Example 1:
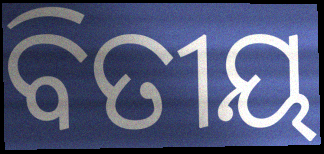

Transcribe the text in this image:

ବିତୀୟ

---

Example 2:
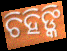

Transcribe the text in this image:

ଚିହିଙ୍କି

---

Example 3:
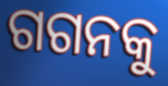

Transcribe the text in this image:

ଗଗନକୁ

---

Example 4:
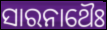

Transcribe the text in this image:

ସାରନାଥୈଃ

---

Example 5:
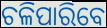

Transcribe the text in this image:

ଚଳିପାରିବେ